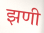
झणी